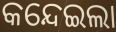
କନ୍ଦେଇଲା